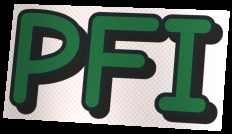
PFI